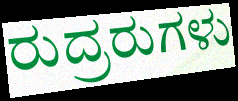
ರುದ್ರರುಗಳು